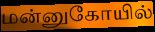
மன்னுகோயில்